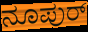
ನೂಪುರ್